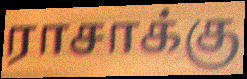
ராசாக்கு